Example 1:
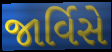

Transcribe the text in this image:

જાર્વિસે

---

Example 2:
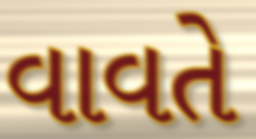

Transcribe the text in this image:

વાવતે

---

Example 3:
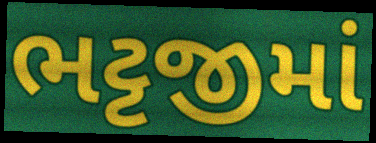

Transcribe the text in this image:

ભટ્ટજીમાં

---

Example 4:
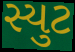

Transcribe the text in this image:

સ્યુટ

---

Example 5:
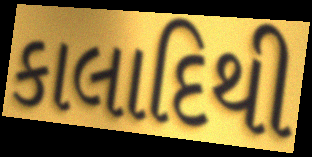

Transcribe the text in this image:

કાલાદિથી